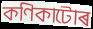
কণিকাটোৰ